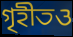
গৃহীতও